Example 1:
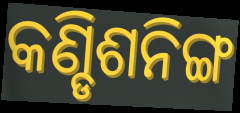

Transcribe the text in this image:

କଣ୍ଡିଶନିଙ୍ଗ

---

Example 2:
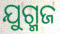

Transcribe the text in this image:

ଯୁଗ୍ମଜ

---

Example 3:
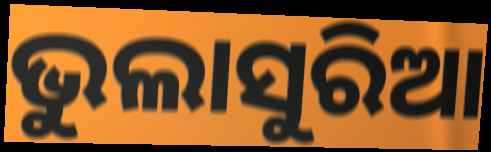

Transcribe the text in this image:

ଭୁଲାସୁରିଆ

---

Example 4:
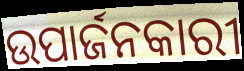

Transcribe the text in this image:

ଉପାର୍ଜନକାରୀ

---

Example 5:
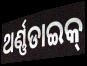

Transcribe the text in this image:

ଥର୍ଣ୍ଣଡାଇକ୍